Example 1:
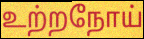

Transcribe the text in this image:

உற்றநோய்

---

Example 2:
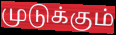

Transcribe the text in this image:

முடுக்கும்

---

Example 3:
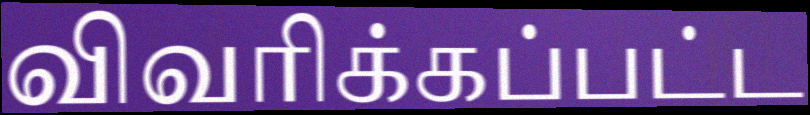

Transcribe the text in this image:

விவரிக்கப்பட்ட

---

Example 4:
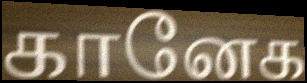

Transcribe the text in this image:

கானேக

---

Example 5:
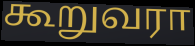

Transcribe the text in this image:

கூறுவரா